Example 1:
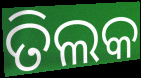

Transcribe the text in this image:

ତିଲକ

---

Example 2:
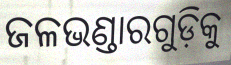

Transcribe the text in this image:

ଜଳଭଣ୍ଡାରଗୁଡ଼ିକୁ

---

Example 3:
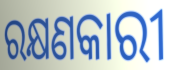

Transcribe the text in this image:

ରକ୍ଷଣକାରୀ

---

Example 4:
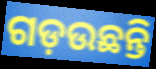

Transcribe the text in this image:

ଗଡ଼ଉଛନ୍ତି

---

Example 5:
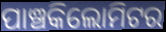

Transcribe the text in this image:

ପାଞ୍ଚକିଲୋମିଟର